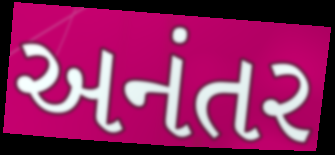
અનંતર